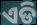
ଏଡି